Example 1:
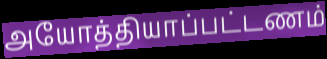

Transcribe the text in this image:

அயோத்தியாப்பட்டணம்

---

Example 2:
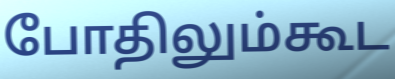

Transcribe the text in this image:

போதிலும்கூட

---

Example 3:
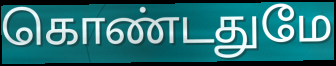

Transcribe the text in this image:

கொண்டதுமே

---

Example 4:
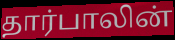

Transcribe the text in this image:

தார்பாலின்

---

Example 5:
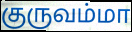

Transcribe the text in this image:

குருவம்மா